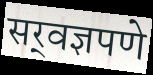
सर्वज्ञपणे